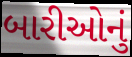
બારીઓનું